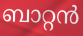
ബാറ്റൻ